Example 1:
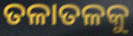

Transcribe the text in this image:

ତଳାତଳକୁ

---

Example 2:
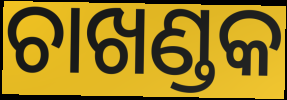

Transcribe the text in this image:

ଚାଖଣ୍ଡକ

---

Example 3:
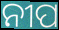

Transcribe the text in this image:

ନୀପ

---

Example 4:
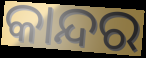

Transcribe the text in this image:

କାନ୍ଦର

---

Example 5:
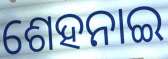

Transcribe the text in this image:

ଶେହନାଇ